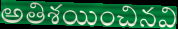
అతిశయించినవి